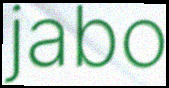
jabo